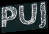
PUJ